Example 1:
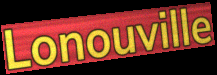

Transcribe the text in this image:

Lonouville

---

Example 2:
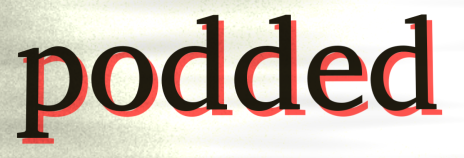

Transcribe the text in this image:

podded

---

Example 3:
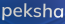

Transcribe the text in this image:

peksha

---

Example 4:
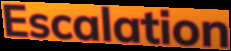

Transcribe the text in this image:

Escalation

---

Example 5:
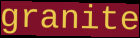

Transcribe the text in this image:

granite